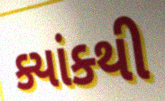
ક્યાંક્થી